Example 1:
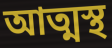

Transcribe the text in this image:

আত্মস্থ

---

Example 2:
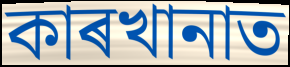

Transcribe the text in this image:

কাৰখানাত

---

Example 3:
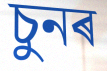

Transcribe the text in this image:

চুনৰ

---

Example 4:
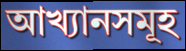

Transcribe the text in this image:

আখ্যানসমূহ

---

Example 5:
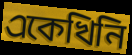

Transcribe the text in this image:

একেখিনি